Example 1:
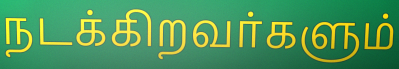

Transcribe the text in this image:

நடக்கிறவர்களும்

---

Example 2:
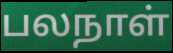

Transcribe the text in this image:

பலநாள்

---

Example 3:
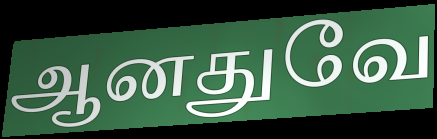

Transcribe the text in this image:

ஆனதுவே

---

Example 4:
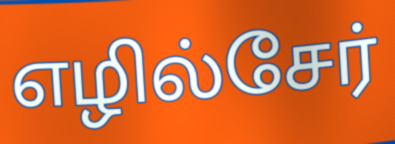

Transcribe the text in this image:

எழில்சேர்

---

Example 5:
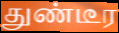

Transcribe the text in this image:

துண்டீர